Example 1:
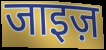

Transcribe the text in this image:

जाइज़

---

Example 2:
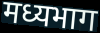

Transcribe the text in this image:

मध्यभाग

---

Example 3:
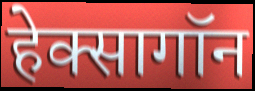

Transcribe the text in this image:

हेक्सागॉन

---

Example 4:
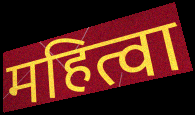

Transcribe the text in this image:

महित्वा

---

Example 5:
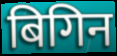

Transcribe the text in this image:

बिगिन